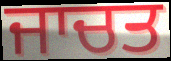
ਜਾਚਤ